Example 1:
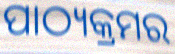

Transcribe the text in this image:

ପାଠ୍ୟକ୍ରମର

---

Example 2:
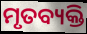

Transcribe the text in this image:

ମୃତବ୍ୟକ୍ତି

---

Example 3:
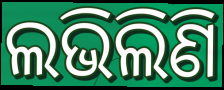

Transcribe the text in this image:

ଲଭିଲିଣି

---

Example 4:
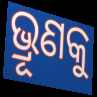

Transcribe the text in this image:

ଭ୍ରୂଣକୁ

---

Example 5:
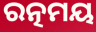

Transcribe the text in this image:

ରତ୍ନମୟ